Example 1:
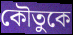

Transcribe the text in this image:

কৌতুকে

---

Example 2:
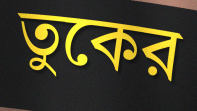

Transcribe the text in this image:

তুকের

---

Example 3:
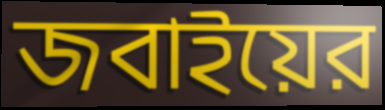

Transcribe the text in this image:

জবাইয়ের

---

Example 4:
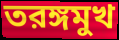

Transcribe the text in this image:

তরঙ্গমুখ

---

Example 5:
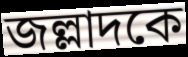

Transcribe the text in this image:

জল্লাদকে